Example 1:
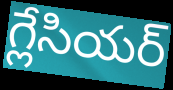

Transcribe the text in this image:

గ్లేసియర్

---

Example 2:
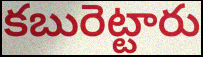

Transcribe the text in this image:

కబురెట్టారు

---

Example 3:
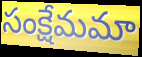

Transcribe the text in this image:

సంక్షేమమా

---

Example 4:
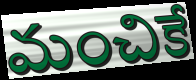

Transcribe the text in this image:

మంచికే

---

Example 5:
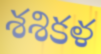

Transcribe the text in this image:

శశికళ